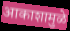
आकाशामुळे